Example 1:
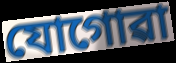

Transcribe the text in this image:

যোগোৱা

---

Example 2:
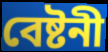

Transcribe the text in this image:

বেষ্টনী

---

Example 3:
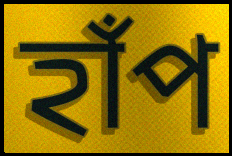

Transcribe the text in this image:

হাঁপ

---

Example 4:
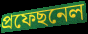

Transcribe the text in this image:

প্ৰফেছনেল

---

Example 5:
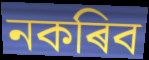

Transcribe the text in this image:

নকৰিব